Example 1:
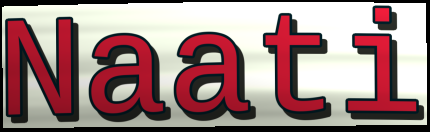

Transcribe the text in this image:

Naati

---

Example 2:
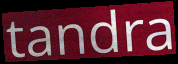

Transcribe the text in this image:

tandra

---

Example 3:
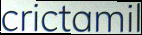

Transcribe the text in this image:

crictamil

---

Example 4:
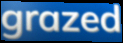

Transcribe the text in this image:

grazed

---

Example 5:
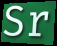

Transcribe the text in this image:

Sr